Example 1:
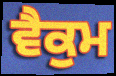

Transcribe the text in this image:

ਵੈਕੁਮ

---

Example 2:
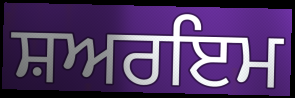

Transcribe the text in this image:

ਸ਼ਅਰਇਮ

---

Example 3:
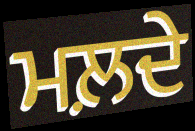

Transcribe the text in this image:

ਮਲ਼ਦੇ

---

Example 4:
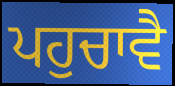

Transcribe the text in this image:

ਪਹੁਚਾਵੈ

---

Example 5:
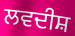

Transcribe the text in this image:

ਲਵਦੀਸ਼